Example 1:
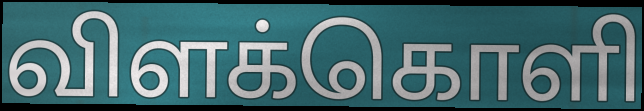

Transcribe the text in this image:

விளக்கொளி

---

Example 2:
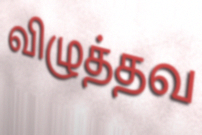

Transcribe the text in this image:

விழுத்தவ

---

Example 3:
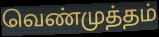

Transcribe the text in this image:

வெண்முத்தம்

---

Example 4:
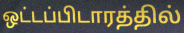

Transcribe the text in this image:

ஒட்டப்பிடாரத்தில்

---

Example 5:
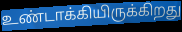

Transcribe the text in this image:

உண்டாக்கியிருக்கிறது